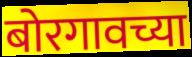
बोरगावच्या